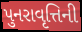
પુનરાવૃત્તિની